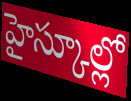
హైస్కూల్లో